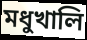
মধুখালি